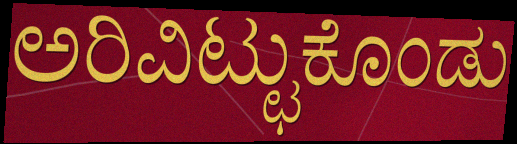
ಅರಿವಿಟ್ಟುಕೊಂಡು